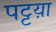
पट्टय़ा